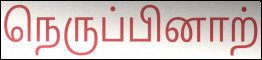
நெருப்பினாற்